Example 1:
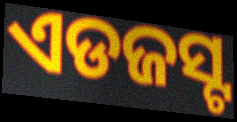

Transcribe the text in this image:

ଏଡଜସ୍ଟ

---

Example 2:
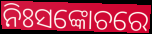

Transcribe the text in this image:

ନିଃସଙ୍କୋଚରେ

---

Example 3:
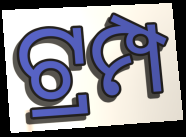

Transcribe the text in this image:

ଟ୍ରମ୍ପ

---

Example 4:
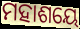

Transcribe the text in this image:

ମହାଶୟେ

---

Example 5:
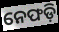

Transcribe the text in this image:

ନେଫଡ଼ି